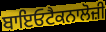
ਬਾਇਓਟੈਕਨਾਲੋਜ਼ੀ